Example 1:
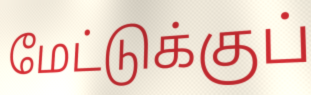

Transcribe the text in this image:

மேட்டுக்குப்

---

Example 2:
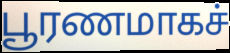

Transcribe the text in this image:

பூரணமாகச்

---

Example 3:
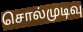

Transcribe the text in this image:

சொல்முடிவு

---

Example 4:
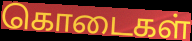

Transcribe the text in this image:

கொடைகள்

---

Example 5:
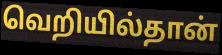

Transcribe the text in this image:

வெறியில்தான்